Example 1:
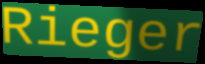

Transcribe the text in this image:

Rieger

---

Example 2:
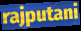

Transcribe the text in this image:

rajputani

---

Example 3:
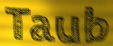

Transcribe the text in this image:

Taub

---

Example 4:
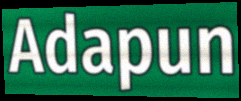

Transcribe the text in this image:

Adapun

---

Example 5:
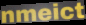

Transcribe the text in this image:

nmeict